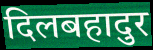
दिलबहादुर